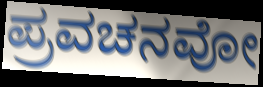
ಪ್ರವಚನವೋ